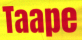
Taape